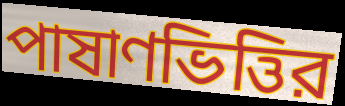
পাষাণভিত্তির